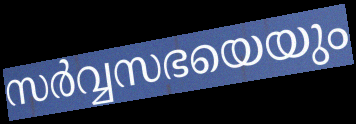
സർവ്വസഭയെയും